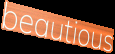
beautious